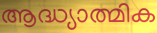
ആദ്ധ്യാത്മിക